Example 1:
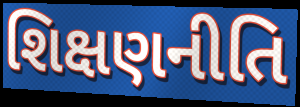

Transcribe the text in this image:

શિક્ષણનીતિ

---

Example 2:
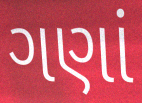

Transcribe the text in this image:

ગણાં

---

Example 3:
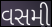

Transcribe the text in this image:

વસમી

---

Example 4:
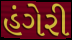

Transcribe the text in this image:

હંગેરી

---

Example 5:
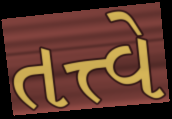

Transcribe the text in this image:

તત્ત્વે